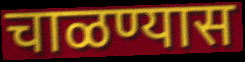
चाळण्यास